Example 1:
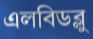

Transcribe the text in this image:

এলবিডব্লু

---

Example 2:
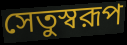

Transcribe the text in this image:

সেতুস্বরূপ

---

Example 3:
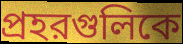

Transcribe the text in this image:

প্রহরগুলিকে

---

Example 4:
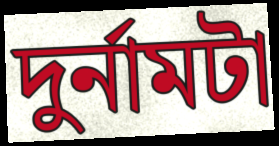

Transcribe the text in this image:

দুর্নামটা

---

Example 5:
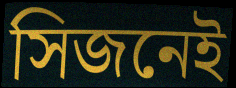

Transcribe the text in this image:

সিজনেই